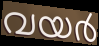
വയർ